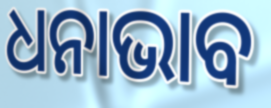
ଧନାଭାବ